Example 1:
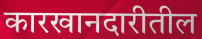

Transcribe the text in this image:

कारखानदारीतील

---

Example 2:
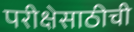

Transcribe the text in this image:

परीक्षेसाठीची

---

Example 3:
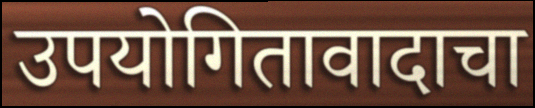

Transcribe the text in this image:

उपयोगितावादाचा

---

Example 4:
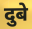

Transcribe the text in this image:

दुबे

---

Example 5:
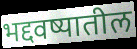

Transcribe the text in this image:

भद्दवष्यातील